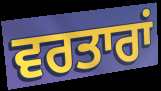
ਵਰਤਾਰਾਂ